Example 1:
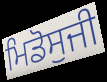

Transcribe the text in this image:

ਮਿਡੋਸੁਜੀ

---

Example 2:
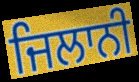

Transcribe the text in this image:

ਜਿਲਾਨੀ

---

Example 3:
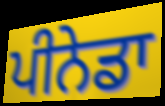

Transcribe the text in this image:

ਪੀਨੇਡਾ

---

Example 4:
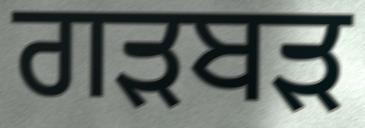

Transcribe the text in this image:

ਗੜਬੜ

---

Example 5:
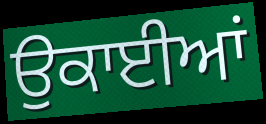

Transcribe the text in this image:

ਉਕਾਈਆਂ